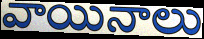
వాయినాలు